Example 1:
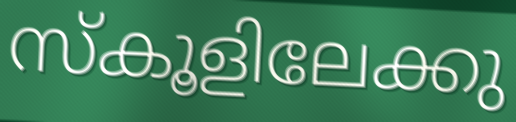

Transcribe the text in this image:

സ്കൂളിലേക്കു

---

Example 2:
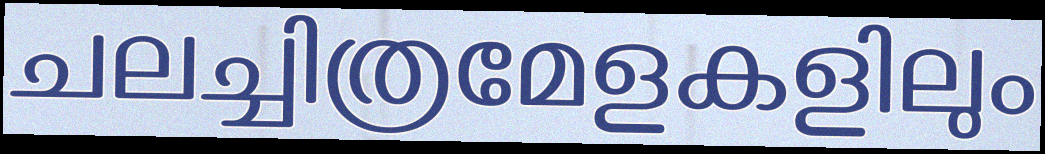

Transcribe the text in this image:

ചലച്ചിത്രമേളകളിലും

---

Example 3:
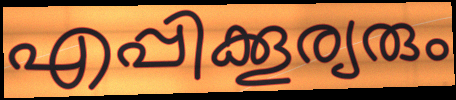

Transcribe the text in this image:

എപ്പിക്കൂര്യരും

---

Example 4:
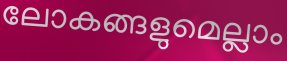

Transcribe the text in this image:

ലോകങ്ങളുമെല്ലാം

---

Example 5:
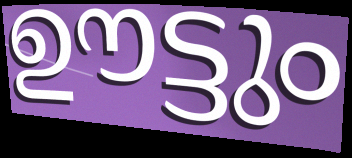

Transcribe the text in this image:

ഊട്ടും